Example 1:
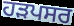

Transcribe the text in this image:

ਹੜਪਸਰ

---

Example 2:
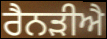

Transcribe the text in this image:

ਰੈਨੜੀਐ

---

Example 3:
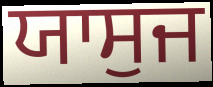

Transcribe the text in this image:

ਯਾਸੁਜ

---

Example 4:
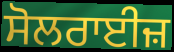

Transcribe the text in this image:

ਸੋਲਰਾਈਜ਼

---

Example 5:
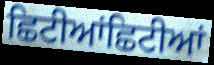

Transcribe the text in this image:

ਛਿਟੀਆਂਛਿਟੀਆਂ